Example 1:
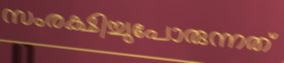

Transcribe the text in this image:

സംരക്ഷിച്ചുപോരുന്നത്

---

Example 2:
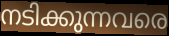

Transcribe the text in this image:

നടിക്കുന്നവരെ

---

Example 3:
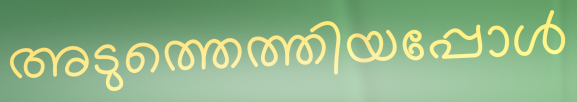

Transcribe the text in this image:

അടുത്തെത്തിയപ്പോൾ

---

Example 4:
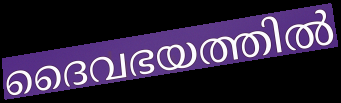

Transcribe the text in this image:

ദൈവഭയത്തിൽ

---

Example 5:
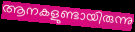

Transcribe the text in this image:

ആനകളുണ്ടായിരുന്നു